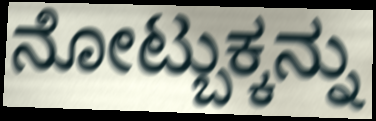
ನೋಟ್ಬುಕ್ಕನ್ನು